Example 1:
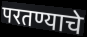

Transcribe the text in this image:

परतण्याचे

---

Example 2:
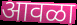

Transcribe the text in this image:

आवळा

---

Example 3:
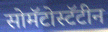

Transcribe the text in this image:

सोमॅटोस्टॅटीन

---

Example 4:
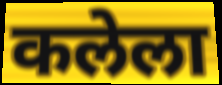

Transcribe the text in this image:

कलेला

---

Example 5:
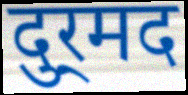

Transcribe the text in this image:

दुर्मद